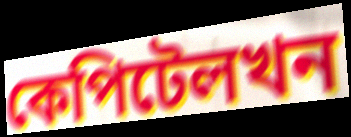
কেপিটেলখন